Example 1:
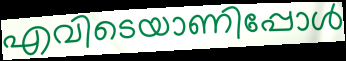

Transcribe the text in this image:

എവിടെയാണിപ്പോൾ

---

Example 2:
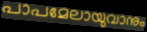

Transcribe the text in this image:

പാപമേലായുവാനും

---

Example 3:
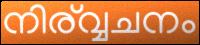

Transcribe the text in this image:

നിര്വ്വചനം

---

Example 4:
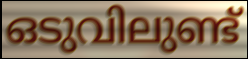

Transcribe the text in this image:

ഒടുവിലുണ്ട്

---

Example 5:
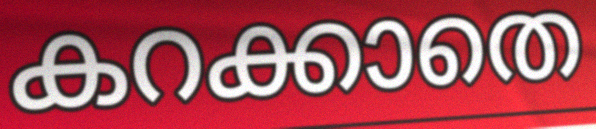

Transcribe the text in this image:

കറക്കാതെ